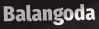
Balangoda